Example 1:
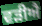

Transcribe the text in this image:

ਵੜੀਐ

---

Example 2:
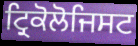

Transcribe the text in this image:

ਟ੍ਰਿਕੋਲੋਜਿਸਟ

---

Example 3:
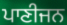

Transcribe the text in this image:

ਪਾਣੀਜਨ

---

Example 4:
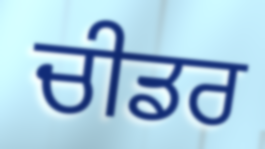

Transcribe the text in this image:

ਚੀਡਰ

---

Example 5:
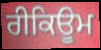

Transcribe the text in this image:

ਰੀਕਿਊਮ